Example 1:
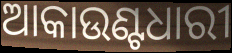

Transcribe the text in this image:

ଆକାଉଣ୍ଟଧାରୀ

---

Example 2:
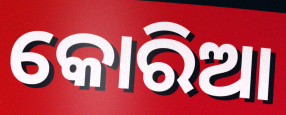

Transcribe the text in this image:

କୋରିଆ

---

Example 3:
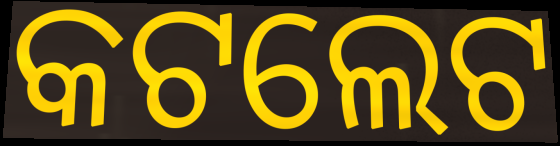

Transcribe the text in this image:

କଟଲେଟ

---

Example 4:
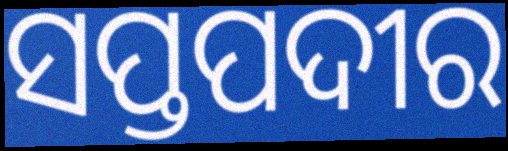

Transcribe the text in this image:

ସପ୍ତପଦୀର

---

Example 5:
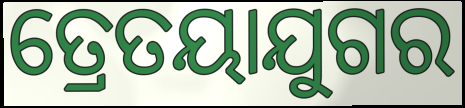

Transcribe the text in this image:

ତ୍ରେତୟାଯୁଗର